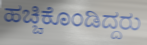
ಹಚ್ಚಿಕೊಂಡಿದ್ದರು